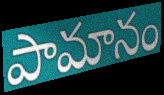
పామానం